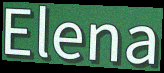
Elena